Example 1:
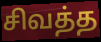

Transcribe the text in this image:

சிவத்த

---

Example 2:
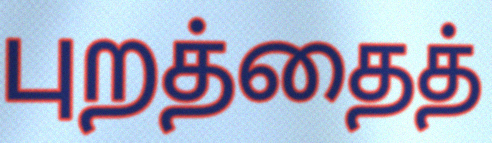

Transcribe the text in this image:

புறத்தைத்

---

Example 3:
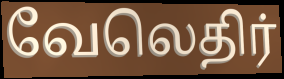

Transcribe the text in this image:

வேலெதிர்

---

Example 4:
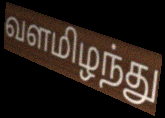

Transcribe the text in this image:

வளமிழந்து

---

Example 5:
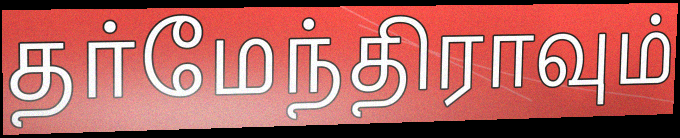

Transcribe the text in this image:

தர்மேந்திராவும்